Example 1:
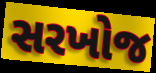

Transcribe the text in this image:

સરખોજ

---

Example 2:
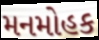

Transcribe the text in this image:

મનમોહક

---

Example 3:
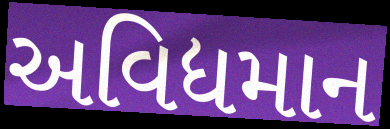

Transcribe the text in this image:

અવિદ્યમાન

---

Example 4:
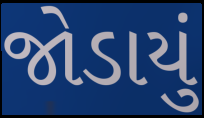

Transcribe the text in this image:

જોડાયું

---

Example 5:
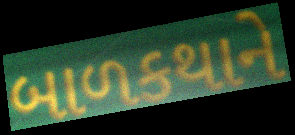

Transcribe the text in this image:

બાળકથાને